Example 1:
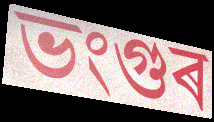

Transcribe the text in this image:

ভংগুৰ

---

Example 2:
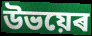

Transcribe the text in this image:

উভয়েৰ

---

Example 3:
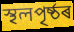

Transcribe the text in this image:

স্থলপৃষ্ঠৰ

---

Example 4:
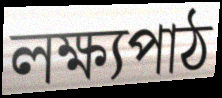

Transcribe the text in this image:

লক্ষ্যপাঠ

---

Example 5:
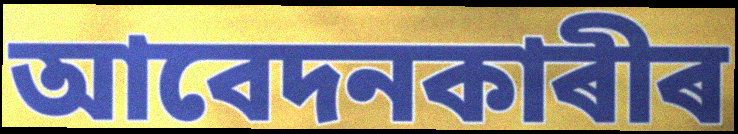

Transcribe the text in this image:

আবেদনকাৰীৰ